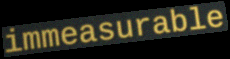
immeasurable